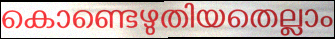
കൊണ്ടെഴുതിയതെല്ലാം